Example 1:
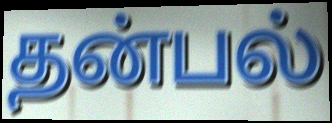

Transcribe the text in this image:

தன்பல்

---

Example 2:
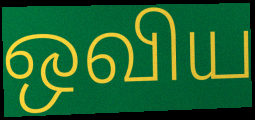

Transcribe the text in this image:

ஒவிய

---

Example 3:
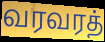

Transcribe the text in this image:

வரவரத்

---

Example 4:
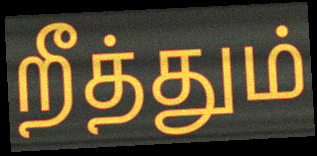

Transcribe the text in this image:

றீத்தும்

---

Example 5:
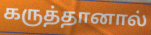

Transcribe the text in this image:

கருத்தானால்